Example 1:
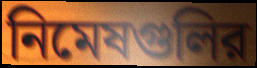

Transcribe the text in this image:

নিমেষগুলির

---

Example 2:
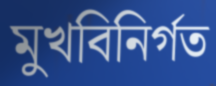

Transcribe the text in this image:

মুখবিনির্গত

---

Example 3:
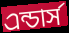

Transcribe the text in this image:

এন্ডার্স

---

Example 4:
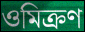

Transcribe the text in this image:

ওমিক্রণ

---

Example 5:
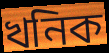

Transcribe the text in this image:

খনিক